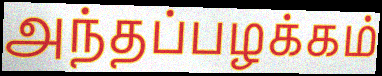
அந்தப்பழக்கம்